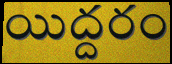
యిద్దరం